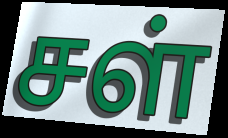
சள்